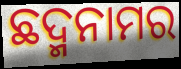
ଛଦ୍ମନାମର